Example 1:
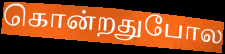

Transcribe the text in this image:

கொன்றதுபோல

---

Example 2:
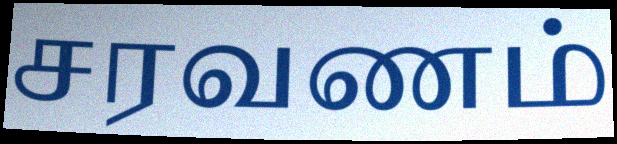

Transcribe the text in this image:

சரவணம்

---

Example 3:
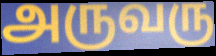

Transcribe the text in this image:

அருவரு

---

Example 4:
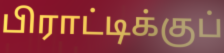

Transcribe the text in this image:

பிராட்டிக்குப்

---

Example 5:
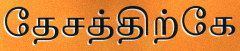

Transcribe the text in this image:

தேசத்திற்கே